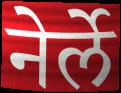
नेर्ले